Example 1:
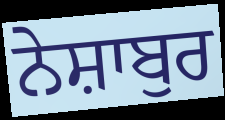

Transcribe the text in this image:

ਨੇਸ਼ਾਬੁਰ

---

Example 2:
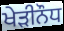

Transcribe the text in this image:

ਖੇੜੀਨੌਧ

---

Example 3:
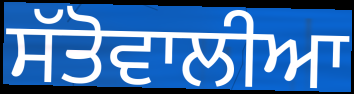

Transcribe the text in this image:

ਸੱਤੋਵਾਲੀਆ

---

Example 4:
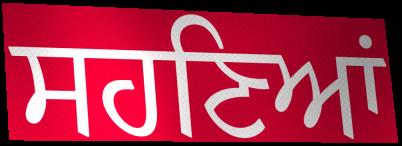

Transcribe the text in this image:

ਸਹਣਿਆਂ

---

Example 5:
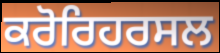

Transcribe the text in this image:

ਕਰੋਰਿਹਰਸਲ